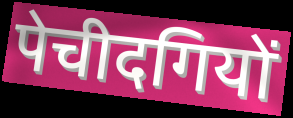
पेचीदगियों